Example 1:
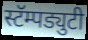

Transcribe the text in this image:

स्टॅम्पड्युटी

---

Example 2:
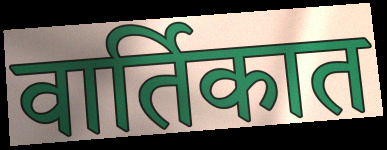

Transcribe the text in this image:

वार्तिकात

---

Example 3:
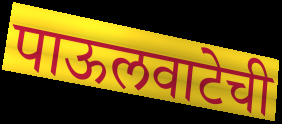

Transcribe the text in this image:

पाऊलवाटेची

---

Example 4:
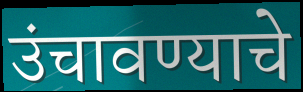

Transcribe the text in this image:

उंचावण्याचे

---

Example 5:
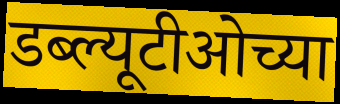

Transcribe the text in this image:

डब्ल्यूटीओच्या